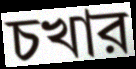
চখার